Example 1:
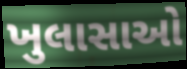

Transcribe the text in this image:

ખુલાસાઓ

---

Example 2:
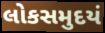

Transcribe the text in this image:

લોકસમુદયં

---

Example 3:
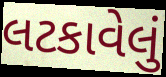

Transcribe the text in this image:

લટકાવેલું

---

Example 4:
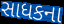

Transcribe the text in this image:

સાધકના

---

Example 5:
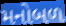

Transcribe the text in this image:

મનોબળ